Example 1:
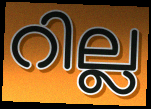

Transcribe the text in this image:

റില്ല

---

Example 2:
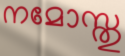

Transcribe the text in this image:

നമോസ്തു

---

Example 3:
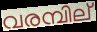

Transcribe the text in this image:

വരമ്പില്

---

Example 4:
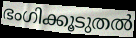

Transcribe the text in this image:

ഭംഗിക്കൂടുതൽ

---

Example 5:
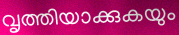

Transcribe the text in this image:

വൃത്തിയാക്കുകയും